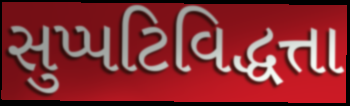
સુપ્પટિવિદ્ધત્તા